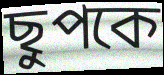
ছুপকে